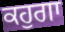
ਕਹੁਗਾ